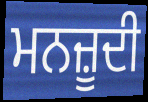
ਮਨਜ਼ੂਦੀ